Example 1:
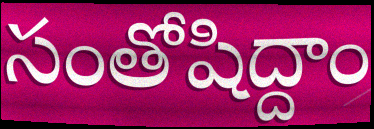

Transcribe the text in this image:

సంతోషిద్దాం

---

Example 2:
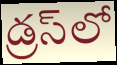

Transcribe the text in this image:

డ్రస్‌లో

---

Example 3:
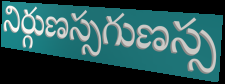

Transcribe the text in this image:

నిర్గుణస్సగుణస్స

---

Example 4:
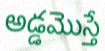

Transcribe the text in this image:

అడ్డమొస్తే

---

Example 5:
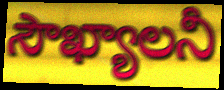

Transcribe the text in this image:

సౌఖ్యాలనీ